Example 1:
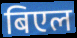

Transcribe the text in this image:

बिएल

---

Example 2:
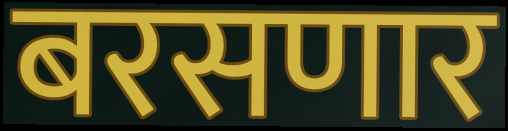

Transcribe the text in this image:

बरसणार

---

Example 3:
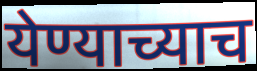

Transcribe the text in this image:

येण्याच्याच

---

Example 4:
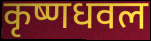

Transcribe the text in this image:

कृष्णधवल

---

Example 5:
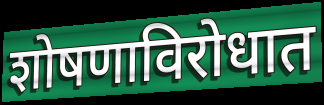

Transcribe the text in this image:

शोषणाविरोधात